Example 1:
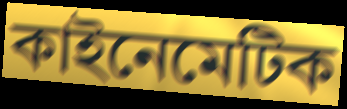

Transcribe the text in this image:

কাইনেমেটিক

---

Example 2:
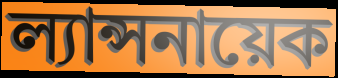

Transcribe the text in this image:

ল্যান্সনায়েক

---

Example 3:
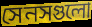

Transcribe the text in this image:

সেনসগুলো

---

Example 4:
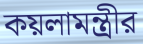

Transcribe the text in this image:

কয়লামন্ত্রীর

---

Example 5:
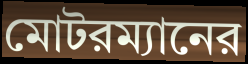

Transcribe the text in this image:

মোটরম্যানের